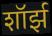
शॉर्झ